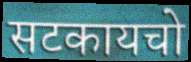
सटकायचो